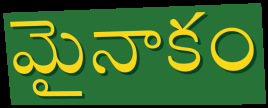
మైనాకం